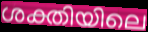
ശക്തിയിലെ